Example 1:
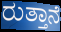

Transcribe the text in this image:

ರುತ್ತಾನೆ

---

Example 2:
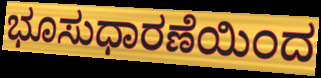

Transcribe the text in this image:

ಭೂಸುಧಾರಣೆಯಿಂದ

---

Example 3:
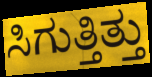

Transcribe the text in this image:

ಸಿಗುತ್ತಿತ್ತು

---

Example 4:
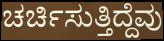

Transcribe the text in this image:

ಚರ್ಚಿಸುತ್ತಿದ್ದೆವು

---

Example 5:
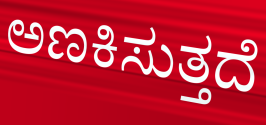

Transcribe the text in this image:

ಅಣಕಿಸುತ್ತದೆ